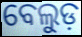
ବେଲୁଡ଼